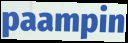
paampin